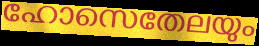
ഹോസെതേലയും